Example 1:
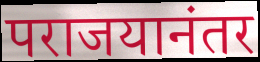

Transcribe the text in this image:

पराजयानंतर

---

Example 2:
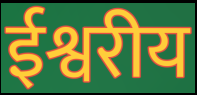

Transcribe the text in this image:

ईश्वरीय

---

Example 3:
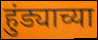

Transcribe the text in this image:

हुंड्याच्या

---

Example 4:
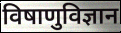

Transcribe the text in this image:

विषाणुविज्ञान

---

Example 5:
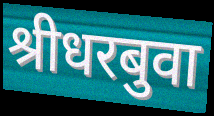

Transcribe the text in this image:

श्रीधरबुवा